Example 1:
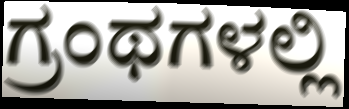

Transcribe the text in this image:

ಗ್ರಂಥಗಳಲ್ಲಿ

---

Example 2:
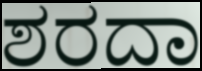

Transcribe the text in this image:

ಶರದಾ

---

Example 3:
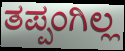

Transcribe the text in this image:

ತಪ್ಪಂಗಿಲ್ಲ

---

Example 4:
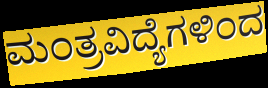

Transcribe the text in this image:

ಮಂತ್ರವಿದ್ಯೆಗಳಿಂದ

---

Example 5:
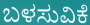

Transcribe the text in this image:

ಬಳಸುವಿಕೆ